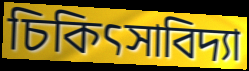
চিকিৎসাবিদ্যা